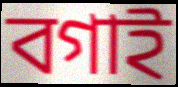
বগাই